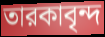
তারকাবৃন্দ